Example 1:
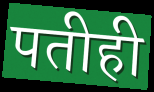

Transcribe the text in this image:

पतीही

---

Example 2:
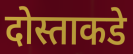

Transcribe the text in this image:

दोस्ताकडे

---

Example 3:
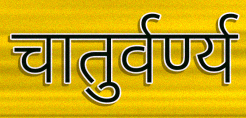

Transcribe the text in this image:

चातुर्वर्ण्य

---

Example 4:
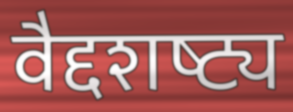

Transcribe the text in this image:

वैद्दशष्ट्य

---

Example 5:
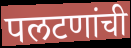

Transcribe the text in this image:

पलटणांची